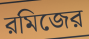
রমিজের